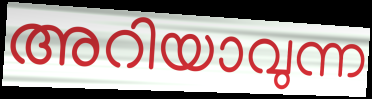
അറിയാവുന്ന